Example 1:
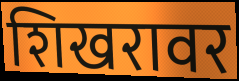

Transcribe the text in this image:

शिखरावर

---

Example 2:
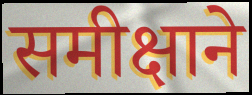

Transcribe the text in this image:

समीक्षाने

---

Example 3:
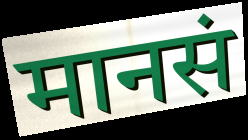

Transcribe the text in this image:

मानसं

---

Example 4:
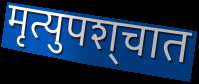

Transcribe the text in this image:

मृत्युपश्चात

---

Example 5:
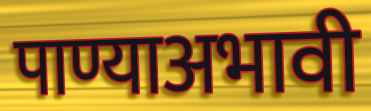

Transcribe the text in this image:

पाण्याअभावी